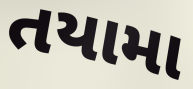
તયામા